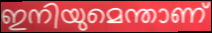
ഇനിയുമെന്താണ്